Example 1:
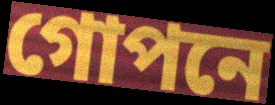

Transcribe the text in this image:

গোপনে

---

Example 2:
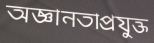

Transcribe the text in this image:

অজ্ঞানতাপ্রযুক্ত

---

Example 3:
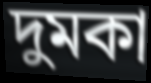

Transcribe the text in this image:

দুমকা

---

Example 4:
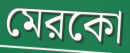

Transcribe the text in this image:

মেরকো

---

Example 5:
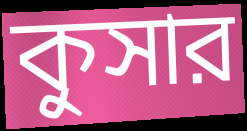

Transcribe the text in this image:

কুসার